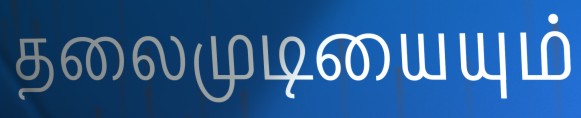
தலைமுடியையும்